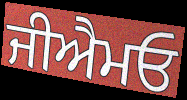
ਜੀਐਮਓ